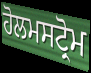
ਹੋਲਮਸਟ੍ਰੋਮ